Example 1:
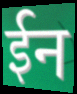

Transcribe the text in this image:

ईन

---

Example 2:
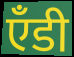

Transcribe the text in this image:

ऍंडी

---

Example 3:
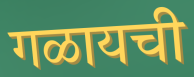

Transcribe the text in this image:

गळायची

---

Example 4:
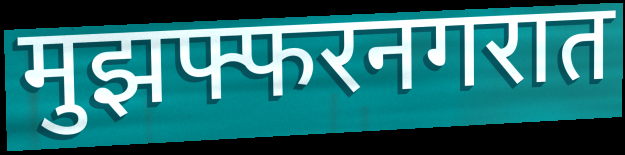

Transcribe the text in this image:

मुझफ्फरनगरात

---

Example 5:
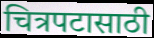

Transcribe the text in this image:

चित्रपटासाठी